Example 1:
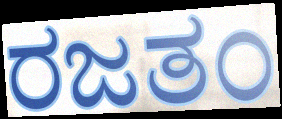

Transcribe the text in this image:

ರಜತಂ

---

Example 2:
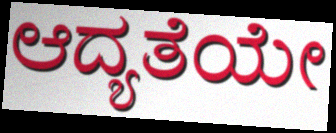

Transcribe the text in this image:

ಆದ್ಯತೆಯೇ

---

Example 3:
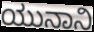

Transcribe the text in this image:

ಯುನಾನಿ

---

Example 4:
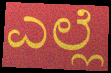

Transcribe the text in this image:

ಎಲ್ಲೆ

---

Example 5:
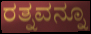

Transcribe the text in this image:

ರತ್ನವನ್ನೂ